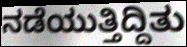
ನಡೆಯುತ್ತಿದ್ದಿತು